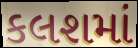
કલશમાં